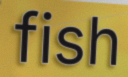
fish